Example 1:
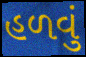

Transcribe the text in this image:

હળવું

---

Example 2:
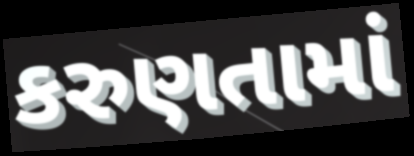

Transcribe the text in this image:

કરુણતામાં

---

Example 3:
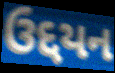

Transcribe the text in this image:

ઉદ્દયન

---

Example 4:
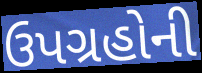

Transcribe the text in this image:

ઉપગ્રહોની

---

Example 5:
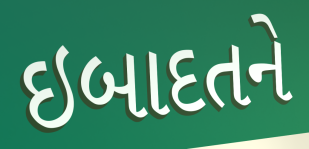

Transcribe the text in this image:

ઇબાદતને